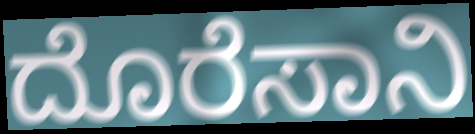
ದೊರೆಸಾನಿ